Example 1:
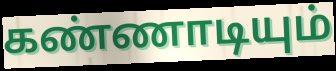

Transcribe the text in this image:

கண்ணாடியும்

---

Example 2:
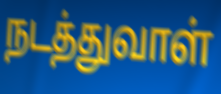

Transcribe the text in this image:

நடத்துவாள்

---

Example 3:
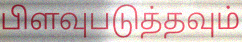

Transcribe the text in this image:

பிளவுபடுத்தவும்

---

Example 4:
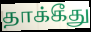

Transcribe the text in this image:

தாக்கீது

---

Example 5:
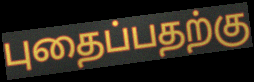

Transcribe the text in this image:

புதைப்பதற்கு